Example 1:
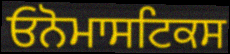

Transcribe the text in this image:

ਓਨੋਮਾਸਟਿਕਸ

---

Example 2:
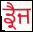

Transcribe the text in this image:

ਡ੍ਰੈਜ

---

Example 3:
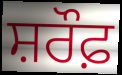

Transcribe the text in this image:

ਸ਼ਰੌਫ਼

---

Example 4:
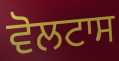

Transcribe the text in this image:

ਵੋਲਟਾਸ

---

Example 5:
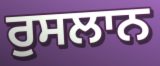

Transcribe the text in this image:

ਰੁਸਲਾਨ